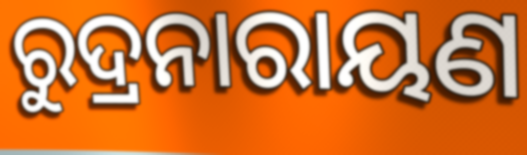
ରୁଦ୍ରନାରାୟଣ